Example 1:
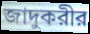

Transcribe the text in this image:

জাদুকরীর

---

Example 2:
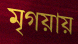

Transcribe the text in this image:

মৃগয়ায়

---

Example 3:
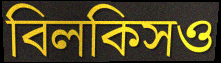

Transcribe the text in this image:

বিলকিসও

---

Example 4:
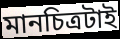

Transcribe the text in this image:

মানচিত্রটাই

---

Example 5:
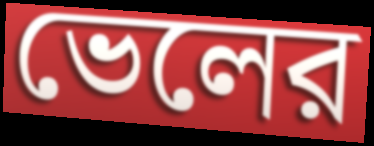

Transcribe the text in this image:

ভেলের